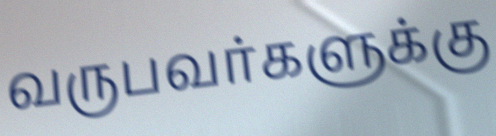
வருபவர்களுக்கு